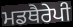
ਮਡਥੈਰੇਪੀ